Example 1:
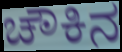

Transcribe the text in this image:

ಚೌಕಿನ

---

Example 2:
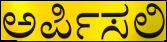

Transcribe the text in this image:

ಅರ್ಪಿಸಲಿ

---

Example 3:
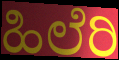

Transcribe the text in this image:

ಹಿಲೆರಿ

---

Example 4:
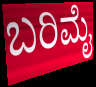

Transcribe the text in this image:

ಬರಿಮೈ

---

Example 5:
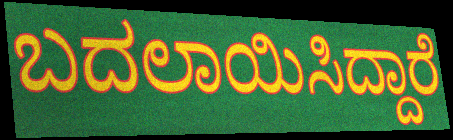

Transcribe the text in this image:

ಬದಲಾಯಿಸಿದ್ದಾರೆ